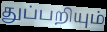
துப்பறியும்